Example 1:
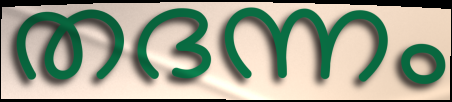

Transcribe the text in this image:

തദന്നം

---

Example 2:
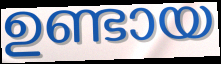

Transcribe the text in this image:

ഉണ്ടായ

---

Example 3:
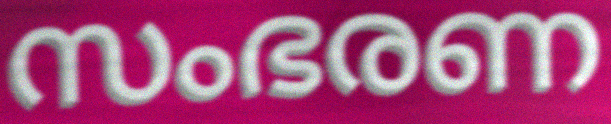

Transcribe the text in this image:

സംഭരണ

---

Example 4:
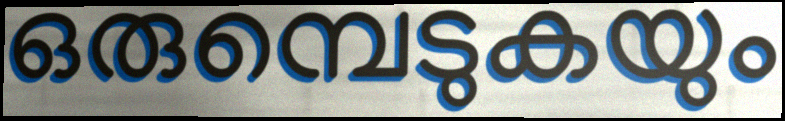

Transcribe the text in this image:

ഒരുമ്പെടുകയും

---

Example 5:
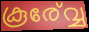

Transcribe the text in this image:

കൂര്വ്വേ